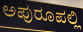
ಅಪುರೂಪಲ್ಲಿ